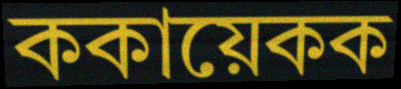
ককায়েকক